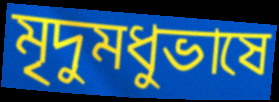
মৃদুমধুভাষে